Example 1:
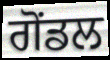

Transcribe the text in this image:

ਗੋਂਡਲ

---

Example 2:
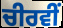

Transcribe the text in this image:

ਚੀਰਵੀਂ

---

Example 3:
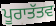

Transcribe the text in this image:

ਪੂਰਾਤੱਤਵ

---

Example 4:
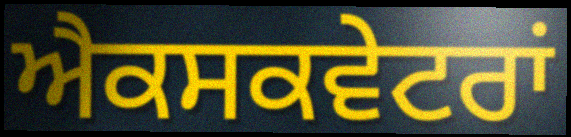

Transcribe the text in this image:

ਐਕਸਕਵੇਟਰਾਂ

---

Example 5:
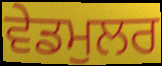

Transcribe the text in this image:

ਵੇਡਮੁਲਰ